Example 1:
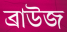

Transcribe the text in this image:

ব্রাউজ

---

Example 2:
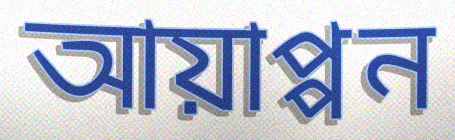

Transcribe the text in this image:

আয়াপ্পন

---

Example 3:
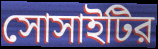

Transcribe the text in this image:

সোসাইটির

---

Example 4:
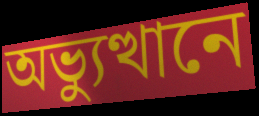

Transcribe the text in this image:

অভ্যুত্থানে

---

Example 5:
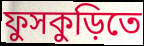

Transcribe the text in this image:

ফুসকুড়িতে